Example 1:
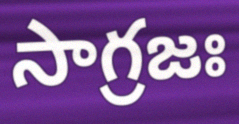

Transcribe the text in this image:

సాగ్రజః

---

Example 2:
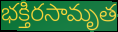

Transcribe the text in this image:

భక్తిరసామృత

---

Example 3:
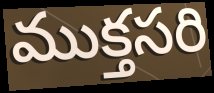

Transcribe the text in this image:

ముక్తసరి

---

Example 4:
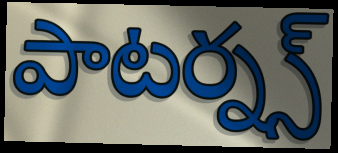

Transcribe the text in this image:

పాటర్న్స్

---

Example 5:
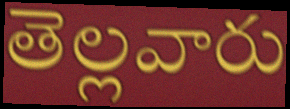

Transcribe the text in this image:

తెల్లవారు